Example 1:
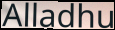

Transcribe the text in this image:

Alladhu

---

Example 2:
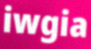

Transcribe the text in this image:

iwgia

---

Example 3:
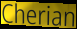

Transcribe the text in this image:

Cherian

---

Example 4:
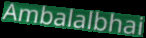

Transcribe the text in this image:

Ambalalbhai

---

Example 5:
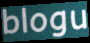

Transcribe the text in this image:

blogu